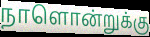
நாளொன்றுக்கு